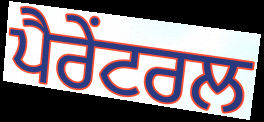
ਪੈਰੇਂਟਰਲ